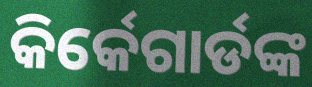
କିର୍କେଗାର୍ଡଙ୍କ